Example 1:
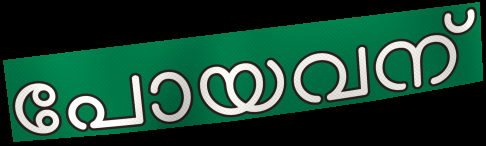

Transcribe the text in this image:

പോയവന്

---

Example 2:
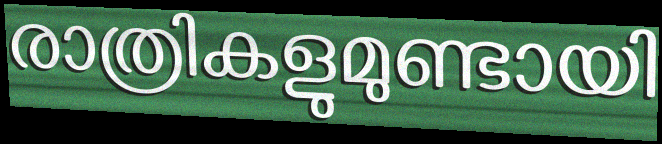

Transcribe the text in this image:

രാത്രികളുമുണ്ടായി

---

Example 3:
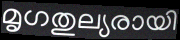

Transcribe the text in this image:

മൃഗതുല്യരായി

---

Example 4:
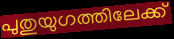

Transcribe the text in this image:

പുതുയുഗത്തിലേക്ക്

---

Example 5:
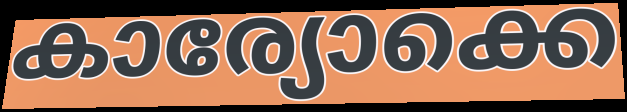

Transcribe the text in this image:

കാര്യോക്കെ